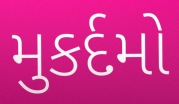
મુકર્દમો